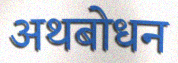
अथबोधन